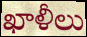
ఖాళీలు